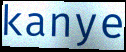
kanye